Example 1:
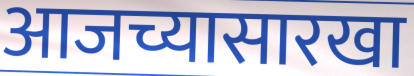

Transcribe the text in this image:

आजच्यासारखा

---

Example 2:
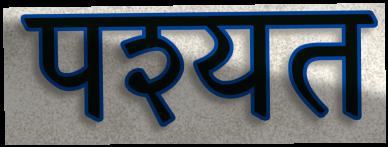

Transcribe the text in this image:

पश्यत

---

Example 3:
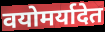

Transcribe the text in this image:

वयोमर्यादेत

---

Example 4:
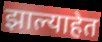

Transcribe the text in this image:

झाल्याहेत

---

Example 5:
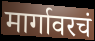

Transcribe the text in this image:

मार्गावरचं